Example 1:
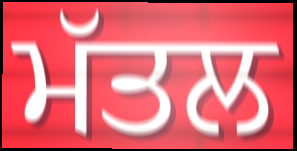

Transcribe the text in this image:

ਮੱਤਲ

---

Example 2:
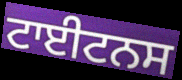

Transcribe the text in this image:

ਟਾਈਟਨਸ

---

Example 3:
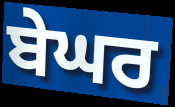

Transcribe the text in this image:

ਬੇਘਰ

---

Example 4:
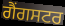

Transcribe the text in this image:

ਗੈਂਗਸਟਰ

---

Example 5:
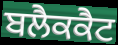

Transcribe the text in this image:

ਬਲੈਕਕੈਟ